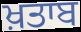
ਖ਼ਤਾਬ